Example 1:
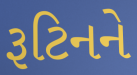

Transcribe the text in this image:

રૂટિનને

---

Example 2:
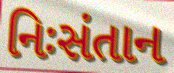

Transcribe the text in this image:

નિઃસંતાન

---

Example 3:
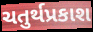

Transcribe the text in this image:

ચતુર્થપ્રકાશ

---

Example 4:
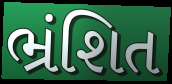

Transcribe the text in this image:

ભ્રંશિત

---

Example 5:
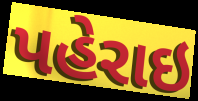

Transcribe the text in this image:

પહેરાઇ